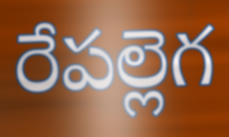
రేపల్లెగ